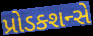
પ્રોડક્શન્સે